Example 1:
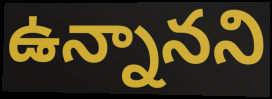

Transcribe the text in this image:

ఉన్నానని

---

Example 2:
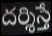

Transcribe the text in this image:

దర్శిస్తే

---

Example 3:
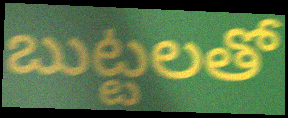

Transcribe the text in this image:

బుట్టలతో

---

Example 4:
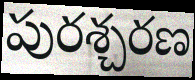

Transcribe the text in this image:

పురశ్చరణ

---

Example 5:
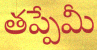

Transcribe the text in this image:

తప్పేమీ